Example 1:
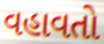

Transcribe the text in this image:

વહાવતો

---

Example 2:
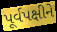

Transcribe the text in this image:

પૂર્વપક્ષીને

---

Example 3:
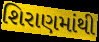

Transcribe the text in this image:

શિરાણમાંથી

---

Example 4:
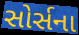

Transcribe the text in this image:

સોર્સના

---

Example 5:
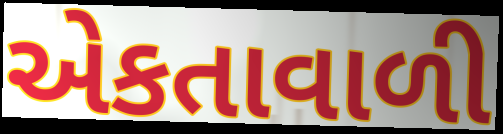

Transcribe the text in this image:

એકતાવાળી